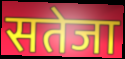
सतेजा